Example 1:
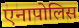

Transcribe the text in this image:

एनापोलिस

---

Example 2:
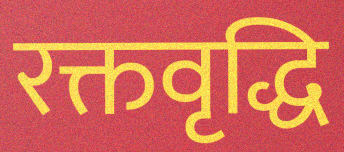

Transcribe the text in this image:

रक्तवृद्धि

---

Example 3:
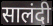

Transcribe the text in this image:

सालंदी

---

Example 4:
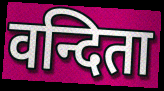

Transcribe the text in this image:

वन्दिता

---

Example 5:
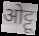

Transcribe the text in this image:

ओट्टू